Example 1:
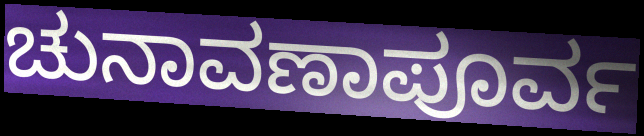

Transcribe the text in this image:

ಚುನಾವಣಾಪೂರ್ವ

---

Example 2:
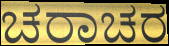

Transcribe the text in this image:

ಚರಾಚರ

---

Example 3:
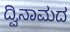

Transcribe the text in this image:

ದ್ವಿನಾಮದ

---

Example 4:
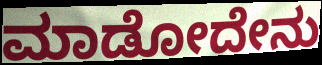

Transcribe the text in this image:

ಮಾಡೋದೇನು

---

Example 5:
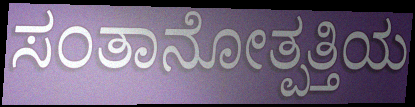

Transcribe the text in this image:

ಸಂತಾನೋತ್ಪತ್ತಿಯ